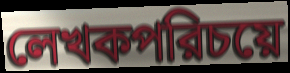
লেখকপরিচয়ে